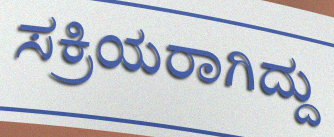
ಸಕ್ರಿಯರಾಗಿದ್ದು